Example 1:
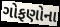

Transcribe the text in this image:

ગોફણોના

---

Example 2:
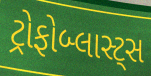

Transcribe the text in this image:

ટ્રોફોબ્લાસ્ટ્સ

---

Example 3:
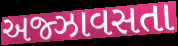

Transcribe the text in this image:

અજ્ઝાવસતા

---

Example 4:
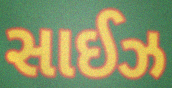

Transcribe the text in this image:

સાઈઝ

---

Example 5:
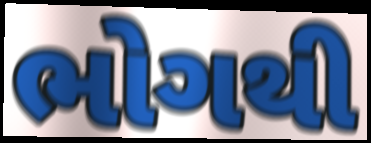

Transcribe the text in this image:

ભોગથી